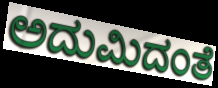
ಅದುಮಿದಂತೆ